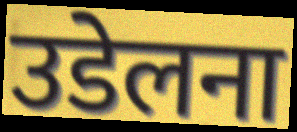
उडेलना